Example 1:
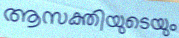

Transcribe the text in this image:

ആസക്തിയുടെയും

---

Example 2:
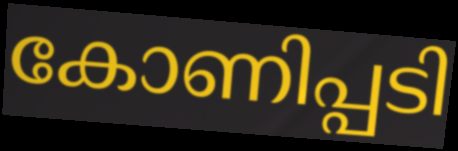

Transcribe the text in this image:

കോണിപ്പടി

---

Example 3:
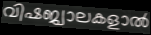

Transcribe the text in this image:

വിഷജ്വാലകളാൽ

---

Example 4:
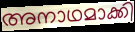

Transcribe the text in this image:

അനാഥമാക്കി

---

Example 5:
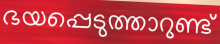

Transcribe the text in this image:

ഭയപ്പെടുത്താറുണ്ട്